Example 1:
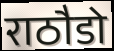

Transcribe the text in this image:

राठौडो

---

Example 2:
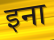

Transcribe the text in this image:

इना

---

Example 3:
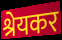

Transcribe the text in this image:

श्रेयकर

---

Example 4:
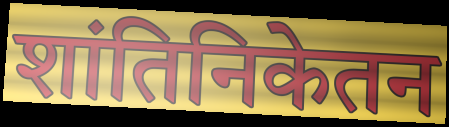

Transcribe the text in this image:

शांतिनिकेतन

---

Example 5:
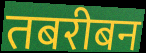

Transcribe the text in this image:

तबरीबन